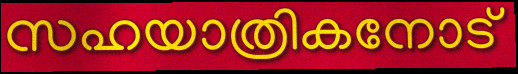
സഹയാത്രികനോട്